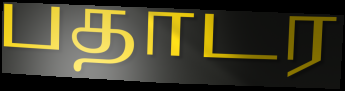
பதாடர